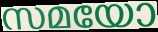
സമയോ